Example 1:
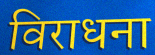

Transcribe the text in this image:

विराधना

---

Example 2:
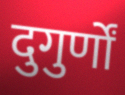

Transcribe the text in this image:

दुगुर्णों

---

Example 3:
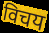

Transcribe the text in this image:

विचय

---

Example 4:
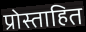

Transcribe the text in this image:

प्रोस्ताहित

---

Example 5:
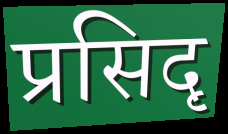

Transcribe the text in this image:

प्रसिदृ